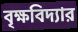
বৃক্ষবিদ্যার